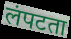
लंपटता